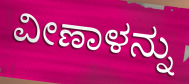
ವೀಣಾಳನ್ನು